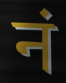
नं